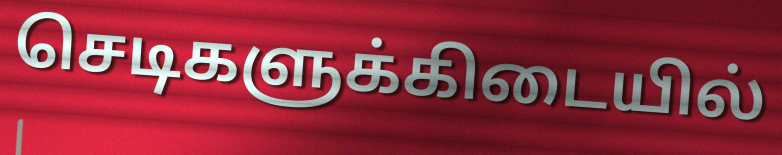
செடிகளுக்கிடையில்